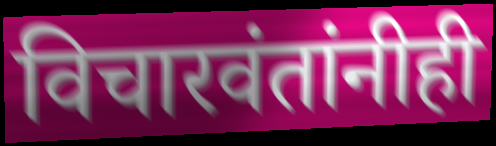
विचारवंतांनीही